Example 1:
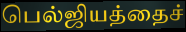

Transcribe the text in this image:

பெல்ஜியத்தைச்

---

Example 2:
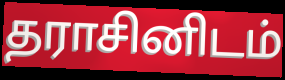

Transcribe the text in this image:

தராசினிடம்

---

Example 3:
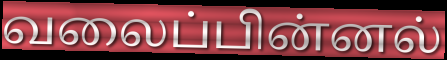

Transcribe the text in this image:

வலைப்பின்னல்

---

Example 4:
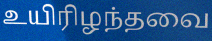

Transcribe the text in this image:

உயிரிழந்தவை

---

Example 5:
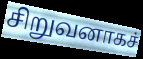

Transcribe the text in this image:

சிறுவனாகச்